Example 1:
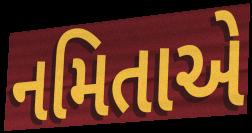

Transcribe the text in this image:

નમિતાએ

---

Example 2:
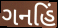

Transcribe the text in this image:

ગનહિં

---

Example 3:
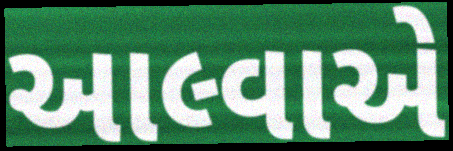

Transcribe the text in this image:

આલ્વાએ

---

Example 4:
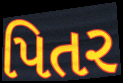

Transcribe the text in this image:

પિતર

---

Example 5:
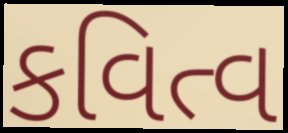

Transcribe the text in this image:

કવિત્વ